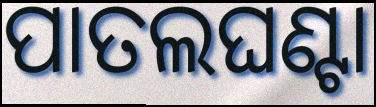
ପାତଲଘଣ୍ଟା